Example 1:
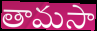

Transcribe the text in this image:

తామసా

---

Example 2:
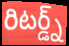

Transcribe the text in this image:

రిటర్డ్న్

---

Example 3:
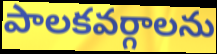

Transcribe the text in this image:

పాలకవర్గాలను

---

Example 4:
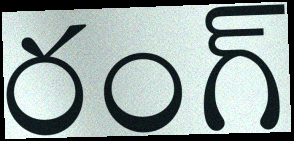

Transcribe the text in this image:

రంగ్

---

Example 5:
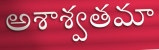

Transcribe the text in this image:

అశాశ్వతమా